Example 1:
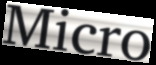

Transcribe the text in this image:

Micro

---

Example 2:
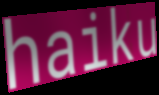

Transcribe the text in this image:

haiku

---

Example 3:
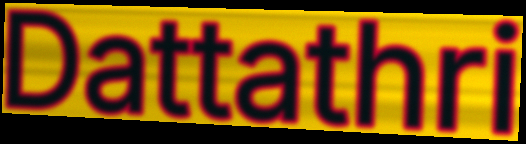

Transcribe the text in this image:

Dattathri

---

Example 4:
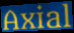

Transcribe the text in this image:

Axial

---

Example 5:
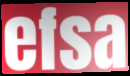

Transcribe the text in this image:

efsa